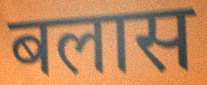
बलास